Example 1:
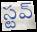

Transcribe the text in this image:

స్టవ్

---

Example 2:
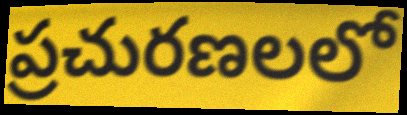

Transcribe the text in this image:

ప్రచురణలలో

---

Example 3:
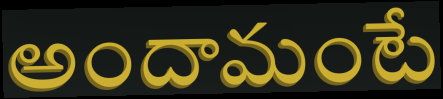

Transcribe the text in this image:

అందామంటే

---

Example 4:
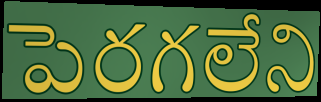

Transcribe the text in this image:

పెరగలేని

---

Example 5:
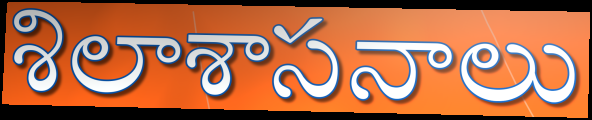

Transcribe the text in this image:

శిలాశాసనాలు